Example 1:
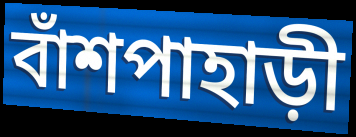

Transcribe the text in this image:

বাঁশপাহাড়ী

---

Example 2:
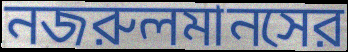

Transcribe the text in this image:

নজরুলমানসের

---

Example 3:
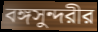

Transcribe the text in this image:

বঙ্গসুন্দরীর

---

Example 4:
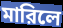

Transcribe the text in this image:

মারিলে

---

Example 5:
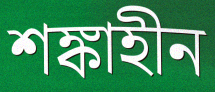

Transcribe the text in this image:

শঙ্কাহীন